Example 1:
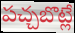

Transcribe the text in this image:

పచ్చబొట్లే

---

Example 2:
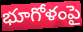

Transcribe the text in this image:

భూగోళంపై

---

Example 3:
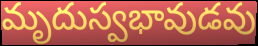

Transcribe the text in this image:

మృదుస్వభావుడవు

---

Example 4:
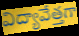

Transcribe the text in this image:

విద్యావేత్తగా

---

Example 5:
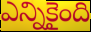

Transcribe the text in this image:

ఎన్నికైంది